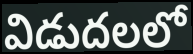
విడుదలలో